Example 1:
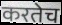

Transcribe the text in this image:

करतेच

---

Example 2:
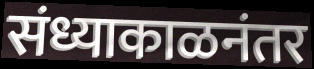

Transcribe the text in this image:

संध्याकाळनंतर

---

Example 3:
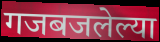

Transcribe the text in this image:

गजबजलेल्या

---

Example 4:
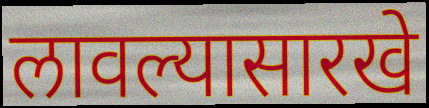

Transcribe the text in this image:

लावल्यासारखे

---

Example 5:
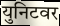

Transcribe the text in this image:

युनिटवर